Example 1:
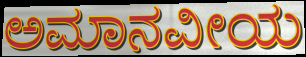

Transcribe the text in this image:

ಅಮಾನವೀಯ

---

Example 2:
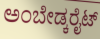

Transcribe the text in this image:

ಅಂಬೇಡ್ಕರೈಟ್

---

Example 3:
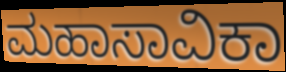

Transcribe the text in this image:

ಮಹಾಸಾವಿಕಾ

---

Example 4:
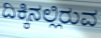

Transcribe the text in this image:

ದಿಕ್ಕಿನಲ್ಲಿರುವ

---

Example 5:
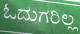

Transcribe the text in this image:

ಓದುಗರಿಲ್ಲ